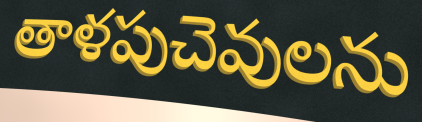
తాళపుచెవులను